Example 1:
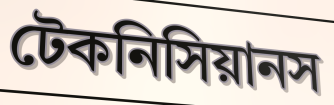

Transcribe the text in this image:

টেকনিসিয়ানস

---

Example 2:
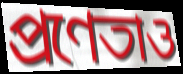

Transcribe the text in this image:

প্রণেতাও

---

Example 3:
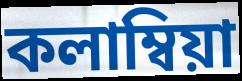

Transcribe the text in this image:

কলাম্বিয়া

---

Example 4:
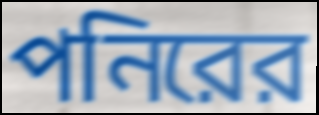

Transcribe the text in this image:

পনিরের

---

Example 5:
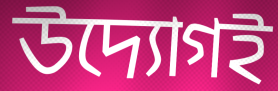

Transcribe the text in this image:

উদ্যোগই